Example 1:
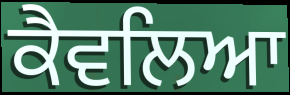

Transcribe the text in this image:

ਕੈਵਲਿਆ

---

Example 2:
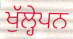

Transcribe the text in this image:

ਖੁੱਲ੍ਹੇਪਨ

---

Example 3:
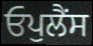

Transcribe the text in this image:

ਓਪੁਲੈਂਸ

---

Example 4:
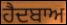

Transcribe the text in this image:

ਹੈਦਬਾਅ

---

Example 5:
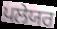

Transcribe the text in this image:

ਪਲੇਯਰ